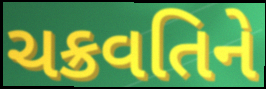
ચક્રવતિને